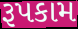
રૂપકામ